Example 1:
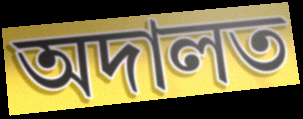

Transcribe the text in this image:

অদালত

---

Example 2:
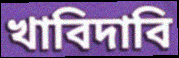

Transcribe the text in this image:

খাবিদাবি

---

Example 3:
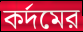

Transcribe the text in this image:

কর্দমের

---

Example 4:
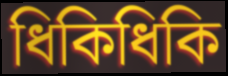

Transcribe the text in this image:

ধিকিধিকি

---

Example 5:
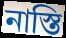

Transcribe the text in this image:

নাস্তি